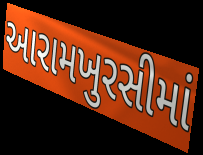
આરામખુરસીમાં